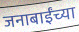
जनाबाईंच्या